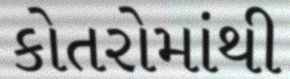
કોતરોમાંથી